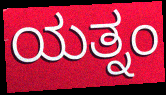
ಯತ್ನಂ